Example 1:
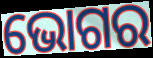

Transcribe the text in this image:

ଭୋଗର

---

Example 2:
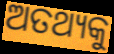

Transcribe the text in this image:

ଅତଥ୍ୟକୁ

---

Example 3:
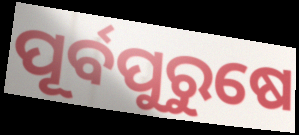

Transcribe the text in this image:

ପୂର୍ବପୁରୁଷେ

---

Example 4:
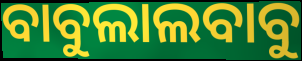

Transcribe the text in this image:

ବାବୁଲାଲବାବୁ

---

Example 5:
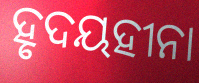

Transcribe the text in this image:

ହୃଦୟହୀନା